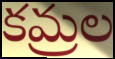
కమ్రల